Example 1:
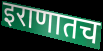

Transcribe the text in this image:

इराणातच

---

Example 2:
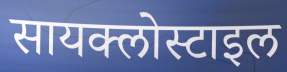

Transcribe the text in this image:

सायक्लोस्टाइल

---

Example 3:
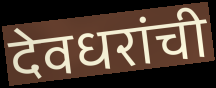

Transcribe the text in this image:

देवधरांची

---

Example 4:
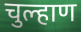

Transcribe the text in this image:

चुल्हाण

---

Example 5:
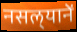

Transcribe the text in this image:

नसल्यानें